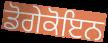
ਡੋਗੇਕੋਇਨ